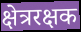
क्षेत्ररक्षक